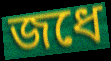
জধে